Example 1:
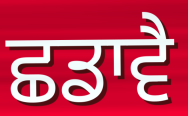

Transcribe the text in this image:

ਛਡਾਵੈ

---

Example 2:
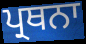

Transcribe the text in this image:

ਪ੍ਰਥਨਾ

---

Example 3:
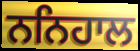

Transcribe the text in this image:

ਨਨਿਹਾਲ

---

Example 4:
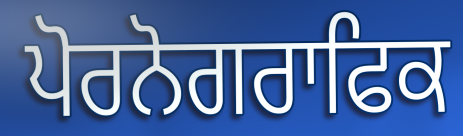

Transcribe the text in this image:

ਪੋਰਨੋਗਰਾਫਿਕ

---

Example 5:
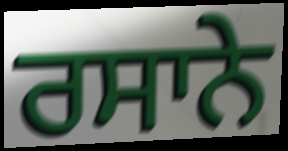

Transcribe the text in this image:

ਰਸਾਨੇ